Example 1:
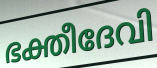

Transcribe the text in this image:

ഭക്തീദേവി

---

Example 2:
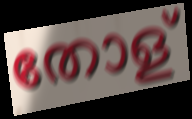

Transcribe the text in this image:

തോള്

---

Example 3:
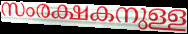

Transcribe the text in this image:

സംരക്ഷകനുള്ള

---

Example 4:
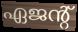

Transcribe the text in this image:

ഏജന്റ്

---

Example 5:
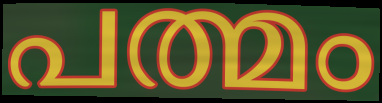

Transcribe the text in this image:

പത്മം